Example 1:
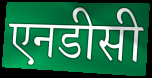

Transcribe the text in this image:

एनडीसी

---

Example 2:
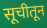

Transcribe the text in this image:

सूचीतून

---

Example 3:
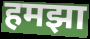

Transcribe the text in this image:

हमझा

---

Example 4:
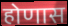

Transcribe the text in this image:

होणास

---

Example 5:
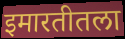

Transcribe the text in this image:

इमारतीतला